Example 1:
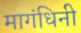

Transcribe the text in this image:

मागंधिनी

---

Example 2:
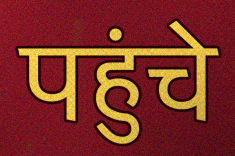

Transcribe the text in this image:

पहुंचे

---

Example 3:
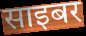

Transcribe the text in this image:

साइबर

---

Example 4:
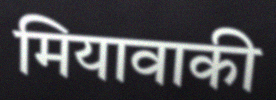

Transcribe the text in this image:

मियावाकी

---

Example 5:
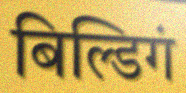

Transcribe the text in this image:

बिल्डिगं